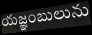
యజ్ఞంబులును